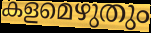
കളമെഴുതും